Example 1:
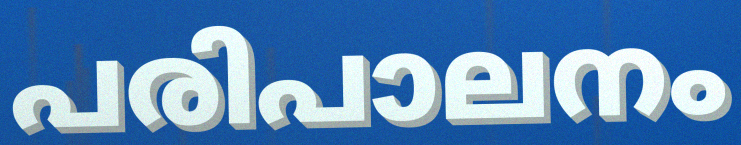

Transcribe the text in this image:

പരിപാലനം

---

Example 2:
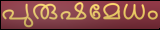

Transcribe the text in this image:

പുരുഷമേധം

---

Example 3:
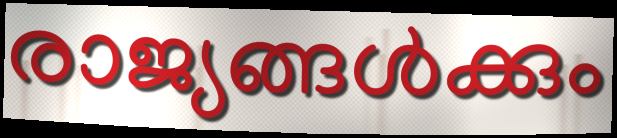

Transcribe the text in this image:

രാജ്യങ്ങൾക്കും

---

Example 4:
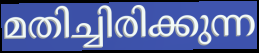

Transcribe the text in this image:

മതിച്ചിരിക്കുന്ന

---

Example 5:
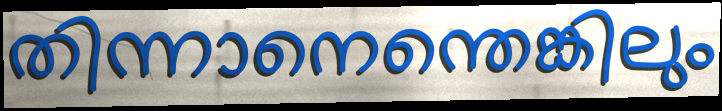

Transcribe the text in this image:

തിന്നാനെന്തെങ്കിലും